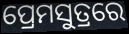
ପ୍ରେମସୁତ୍ରରେ